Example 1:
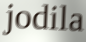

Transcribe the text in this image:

jodila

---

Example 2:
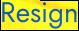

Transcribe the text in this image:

Resign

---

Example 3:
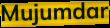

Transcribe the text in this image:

Mujumdar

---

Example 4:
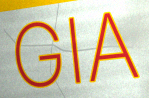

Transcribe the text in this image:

GIA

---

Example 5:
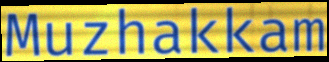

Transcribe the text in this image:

Muzhakkam